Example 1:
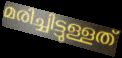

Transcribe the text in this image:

മരിച്ചിട്ടുള്ളത്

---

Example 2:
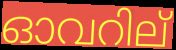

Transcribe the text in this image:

ഓവറില്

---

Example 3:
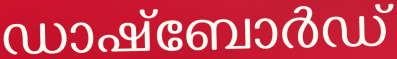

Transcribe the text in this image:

ഡാഷ്ബോർഡ്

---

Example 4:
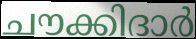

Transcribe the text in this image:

ചൗക്കിദാർ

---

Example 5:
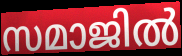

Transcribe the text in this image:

സമാജിൽ